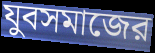
যুবসমাজের